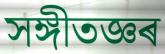
সঙ্গীতজ্ঞৰ